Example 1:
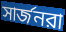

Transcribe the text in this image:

সার্জনরা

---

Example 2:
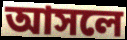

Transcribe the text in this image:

আসলে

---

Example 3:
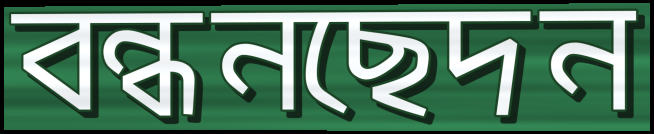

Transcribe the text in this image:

বন্ধনছেদন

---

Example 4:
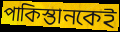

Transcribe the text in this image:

পাকিস্তানকেই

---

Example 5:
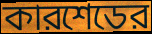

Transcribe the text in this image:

কারশেডের